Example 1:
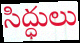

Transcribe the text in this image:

సిద్ధులు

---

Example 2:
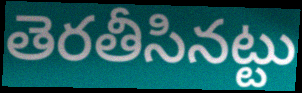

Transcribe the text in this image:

తెరతీసినట్టు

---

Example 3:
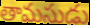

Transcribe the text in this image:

తామసుడు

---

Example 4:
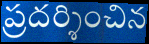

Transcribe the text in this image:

ప్రదర్శించిన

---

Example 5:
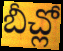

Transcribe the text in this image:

బీచ్లో